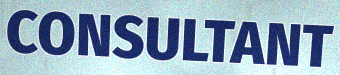
CONSULTANT